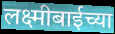
लक्ष्मीबाईच्या